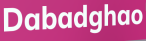
Dabadghao